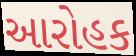
આરોહક